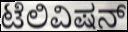
ಟೆಲಿವಿಷನ್